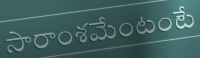
సారాంశమేంటంటే